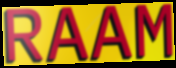
RAAM